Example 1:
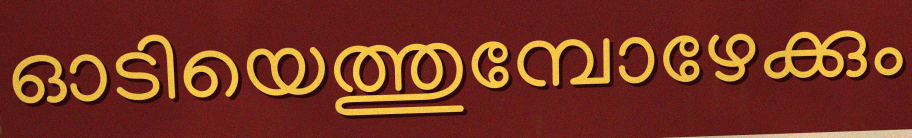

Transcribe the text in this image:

ഓടിയെത്തുമ്പോഴേക്കും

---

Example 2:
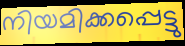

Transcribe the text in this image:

നിയമിക്കപ്പെട്ടു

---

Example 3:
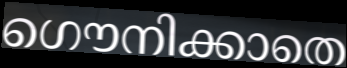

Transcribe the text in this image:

ഗൌനിക്കാതെ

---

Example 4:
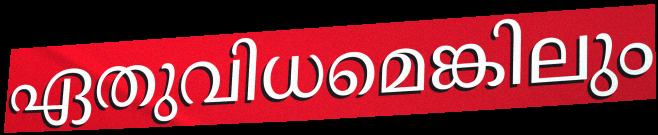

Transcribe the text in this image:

ഏതുവിധമെങ്കിലും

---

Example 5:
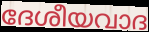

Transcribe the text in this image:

ദേശീയവാദ